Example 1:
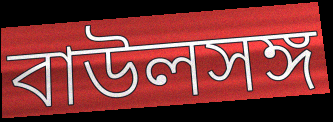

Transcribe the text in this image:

বাউলসঙ্গ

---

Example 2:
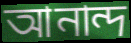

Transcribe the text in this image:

আনান্দ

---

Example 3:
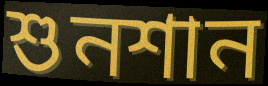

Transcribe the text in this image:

শুনশান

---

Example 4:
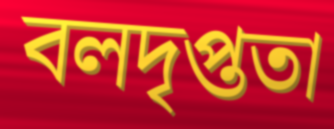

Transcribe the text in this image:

বলদৃপ্ততা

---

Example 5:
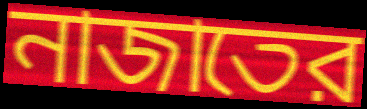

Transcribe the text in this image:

নাজাতের